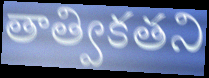
తాత్వికతని